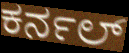
ಕರ್ನಲ್